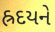
હ્રદયને